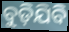
ବୁଡ଼ିଯିବି